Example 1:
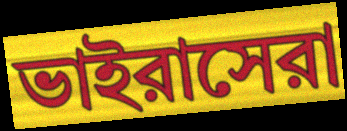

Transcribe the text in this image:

ভাইরাসেরা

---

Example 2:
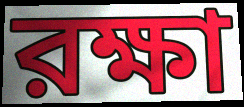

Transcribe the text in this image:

রক্ষা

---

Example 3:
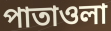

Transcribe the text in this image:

পাতাওলা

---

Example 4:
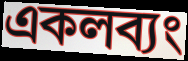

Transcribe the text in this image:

একলব্যং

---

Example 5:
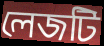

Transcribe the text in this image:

লেজটি